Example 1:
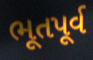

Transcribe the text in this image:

ભૂતપૂર્વ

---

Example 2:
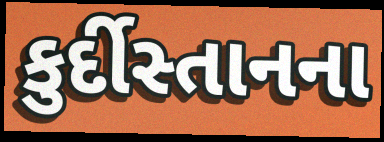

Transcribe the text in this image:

કુર્દીસ્તાનના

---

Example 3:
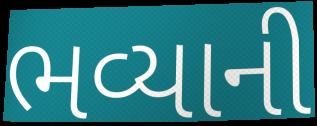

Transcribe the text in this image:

ભવ્યાની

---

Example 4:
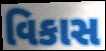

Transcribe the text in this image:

વિકાસ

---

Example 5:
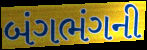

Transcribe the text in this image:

બંગભંગની